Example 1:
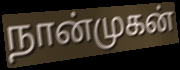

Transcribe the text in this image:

நான்முகன்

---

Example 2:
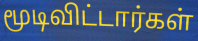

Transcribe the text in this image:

மூடிவிட்டார்கள்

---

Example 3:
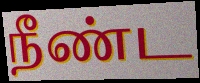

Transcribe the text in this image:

நீண்ட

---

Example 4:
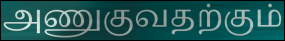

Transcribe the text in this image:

அணுகுவதற்கும்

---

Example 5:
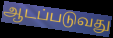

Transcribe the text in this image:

ஆடப்படுவது